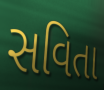
સવિતા